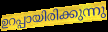
ഉറപ്പായിരിക്കുന്നു